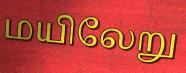
மயிலேறு